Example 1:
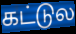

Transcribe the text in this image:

கட்டுல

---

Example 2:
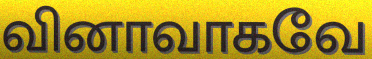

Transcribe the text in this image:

வினாவாகவே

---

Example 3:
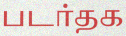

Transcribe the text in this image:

படர்தக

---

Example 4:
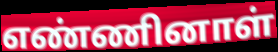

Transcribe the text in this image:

எண்ணினாள்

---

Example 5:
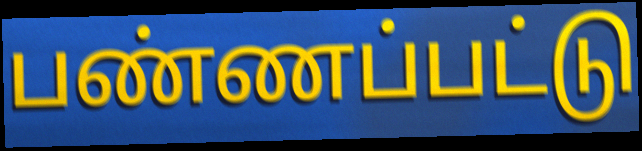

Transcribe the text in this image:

பண்ணப்பட்டு